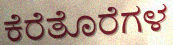
ಕೆರೆತೊರೆಗಳ